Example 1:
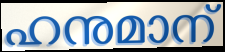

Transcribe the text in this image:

ഹനുമാന്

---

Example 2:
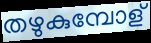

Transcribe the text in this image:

തഴുകുമ്പോള്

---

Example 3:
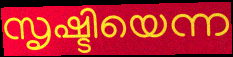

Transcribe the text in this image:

സൃഷ്ടിയെന്ന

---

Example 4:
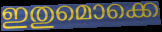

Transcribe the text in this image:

ഇതുമൊക്കെ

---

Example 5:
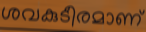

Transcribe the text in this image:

ശവകുടീരമാണ്